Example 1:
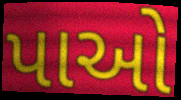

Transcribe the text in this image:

પાઓ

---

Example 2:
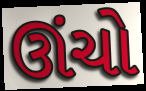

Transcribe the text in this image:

ઊંચો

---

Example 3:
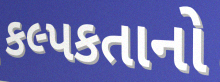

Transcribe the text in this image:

કલ્પકતાનો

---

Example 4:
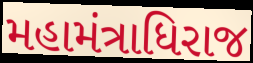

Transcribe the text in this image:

મહામંત્રાધિરાજ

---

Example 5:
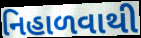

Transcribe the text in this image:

નિહાળવાથી